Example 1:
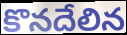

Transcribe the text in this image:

కొనదేలిన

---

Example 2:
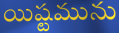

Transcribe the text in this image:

యిష్టమును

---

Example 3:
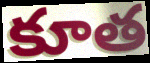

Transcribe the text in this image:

కూత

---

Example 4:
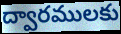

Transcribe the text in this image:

ద్వారములకు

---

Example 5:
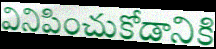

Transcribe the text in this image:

వినిపించుకోడానికి